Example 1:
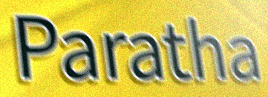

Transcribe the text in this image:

Paratha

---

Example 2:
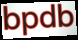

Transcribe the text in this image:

bpdb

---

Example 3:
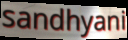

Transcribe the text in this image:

sandhyani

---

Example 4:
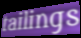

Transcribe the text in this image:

tailings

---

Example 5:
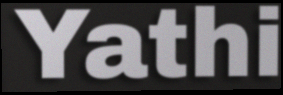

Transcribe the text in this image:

Yathi